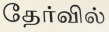
தேர்வில்